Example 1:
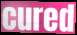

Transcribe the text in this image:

cured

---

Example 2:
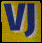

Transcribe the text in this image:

VJ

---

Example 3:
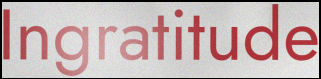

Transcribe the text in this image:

Ingratitude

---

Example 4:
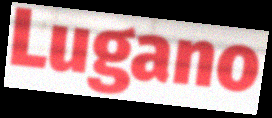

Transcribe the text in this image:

Lugano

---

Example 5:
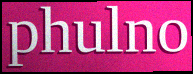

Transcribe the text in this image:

phulno